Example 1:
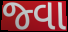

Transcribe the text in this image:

જ્વા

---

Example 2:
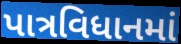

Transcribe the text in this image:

પાત્રવિધાનમાં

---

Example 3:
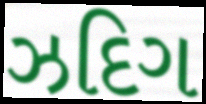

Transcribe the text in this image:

ઝદિગ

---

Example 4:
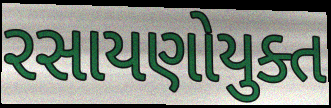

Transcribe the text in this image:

રસાયણોયુક્ત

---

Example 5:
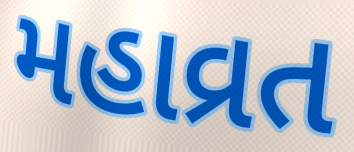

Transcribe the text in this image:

મહાવ્રત